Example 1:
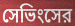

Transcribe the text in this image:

সেভিংসের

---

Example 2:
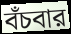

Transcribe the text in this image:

বঁচবার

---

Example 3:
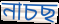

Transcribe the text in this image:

নাচছ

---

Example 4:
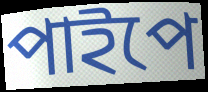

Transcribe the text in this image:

পাইপে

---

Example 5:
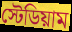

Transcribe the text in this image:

স্টেডিয়াম